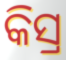
କିସ୍ର